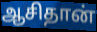
ஆசிதான்